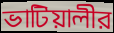
ভাটিয়ালীর